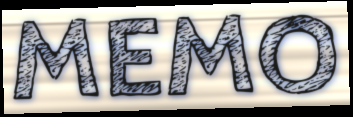
MEMO